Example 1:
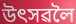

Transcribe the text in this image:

উৎসৱলৈ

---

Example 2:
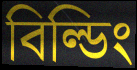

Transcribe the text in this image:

বিল্ডিং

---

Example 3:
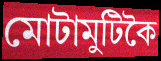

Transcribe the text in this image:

মোটামুটিকৈ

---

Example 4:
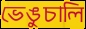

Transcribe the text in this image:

ভেঙুচালি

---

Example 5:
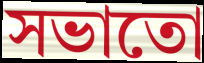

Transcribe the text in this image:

সভাতো